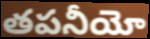
తపనీయో